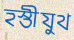
হস্তীযুথ